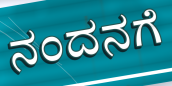
ನಂದನಗೆ